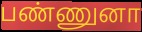
பண்ணுனா